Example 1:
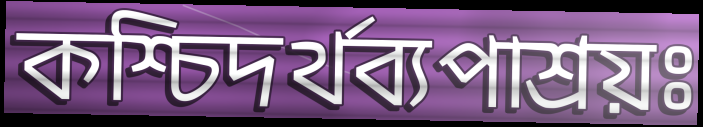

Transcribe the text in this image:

কশ্চিদর্থব্যপাশ্রয়ঃ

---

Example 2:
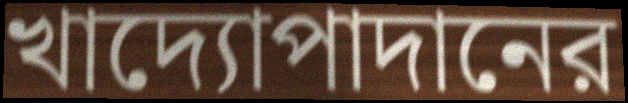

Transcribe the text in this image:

খাদ্যোপাদানের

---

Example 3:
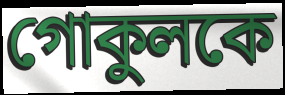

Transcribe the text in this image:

গোকুলকে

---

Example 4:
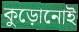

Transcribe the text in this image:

কুড়োনোই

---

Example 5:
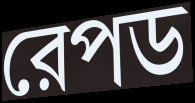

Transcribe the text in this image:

রেপড